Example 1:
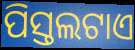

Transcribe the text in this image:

ପିସ୍ତଲଟାଏ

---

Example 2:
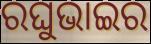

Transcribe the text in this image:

ରଘୁଭାଇର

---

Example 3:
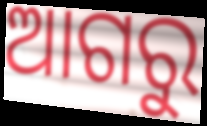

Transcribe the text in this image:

ଆଗରୁ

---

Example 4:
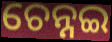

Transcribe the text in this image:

ଚେନ୍ନଇ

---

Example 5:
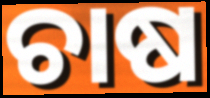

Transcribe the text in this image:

ଚାଷ